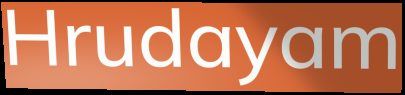
Hrudayam